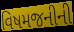
વિષમજનીની